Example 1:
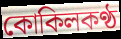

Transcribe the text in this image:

কোকিলকণ্ঠ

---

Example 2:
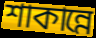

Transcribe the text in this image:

শাকান্নে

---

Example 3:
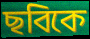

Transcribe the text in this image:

ছবিকে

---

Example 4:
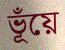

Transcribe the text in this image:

ভূঁয়ে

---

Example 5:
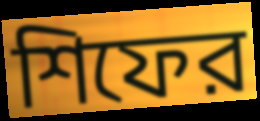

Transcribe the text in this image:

শিফের